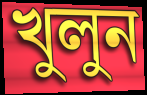
খুলুন